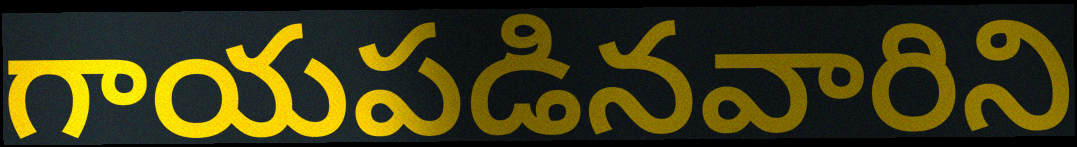
గాయపడినవారిని